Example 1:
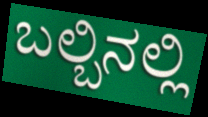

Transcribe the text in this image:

ಬಲ್ಬಿನಲ್ಲಿ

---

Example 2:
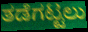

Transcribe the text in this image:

ತಡೆಗಟ್ಟಲು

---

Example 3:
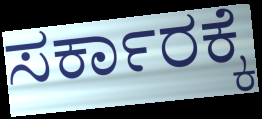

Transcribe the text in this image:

ಸರ್ಕಾರಕ್ಕೆ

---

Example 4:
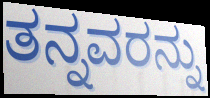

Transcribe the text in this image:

ತನ್ನವರನ್ನು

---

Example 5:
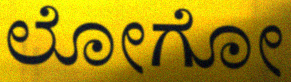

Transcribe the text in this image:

ಲೋಗೋ